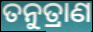
ତନୁତ୍ରାଣ